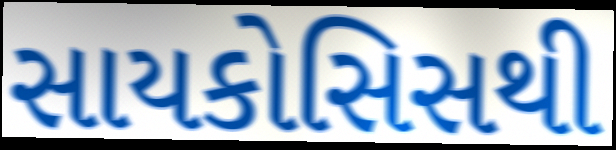
સાયકોસિસથી